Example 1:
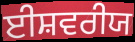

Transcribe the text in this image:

ਈਸ਼ਵਰੀਯ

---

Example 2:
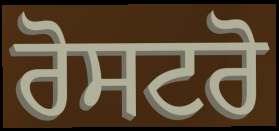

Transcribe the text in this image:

ਰੋਸਟਰੋ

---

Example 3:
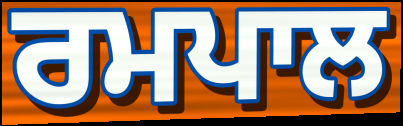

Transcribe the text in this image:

ਰਮਪਾਲ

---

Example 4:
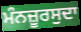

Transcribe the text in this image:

ਮੰਨਜ਼ੂਰਸੁਦਾ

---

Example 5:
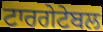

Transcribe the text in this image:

ਟਾਰਗੇਟੇਬਲ